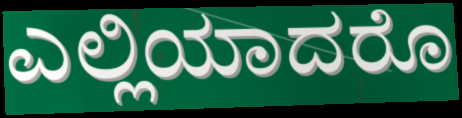
ಎಲ್ಲಿಯಾದರೊ